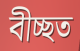
বীচ্ছত